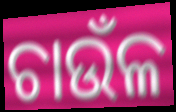
ଚାଉଁଳ